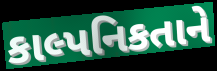
કાલ્પનિકતાને